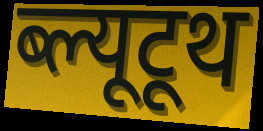
ब्ल्यूटूथ